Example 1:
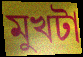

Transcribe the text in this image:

মুখটা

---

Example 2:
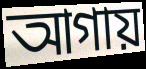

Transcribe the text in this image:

আগায়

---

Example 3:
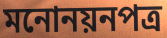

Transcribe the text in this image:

মনোনয়নপত্র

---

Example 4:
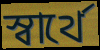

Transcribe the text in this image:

স্বার্থে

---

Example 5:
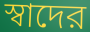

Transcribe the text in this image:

স্বাদের